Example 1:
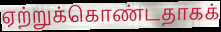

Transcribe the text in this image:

ஏற்றுக்கொண்டதாகக்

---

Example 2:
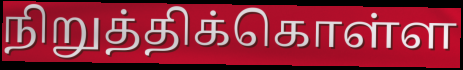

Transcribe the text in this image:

நிறுத்திக்கொள்ள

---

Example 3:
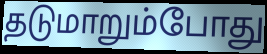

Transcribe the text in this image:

தடுமாறும்போது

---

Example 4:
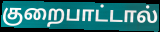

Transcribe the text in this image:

குறைபாட்டால்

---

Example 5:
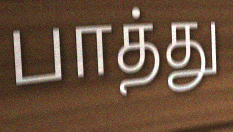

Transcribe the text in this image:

பாத்து